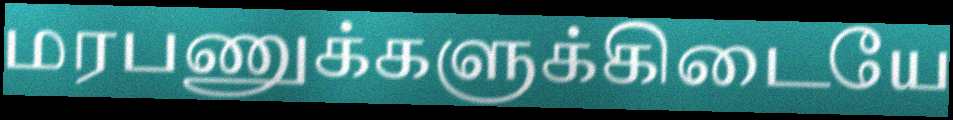
மரபணுக்களுக்கிடையே